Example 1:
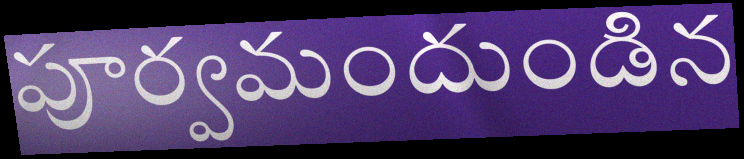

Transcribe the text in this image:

పూర్వమందుండిన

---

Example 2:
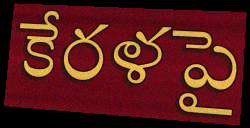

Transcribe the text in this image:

కేరళపై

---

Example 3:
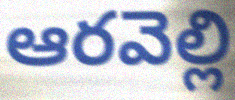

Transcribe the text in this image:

ఆరవెల్లి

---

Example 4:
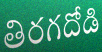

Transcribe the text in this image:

తిరగదోడి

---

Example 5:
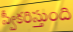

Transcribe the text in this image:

స్వీకరిస్తుంది